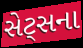
સેટ્સના